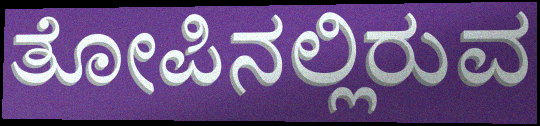
ತೋಪಿನಲ್ಲಿರುವ